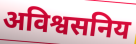
अविश्वसनिय